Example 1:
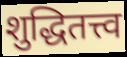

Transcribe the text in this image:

शुद्धितत्त्व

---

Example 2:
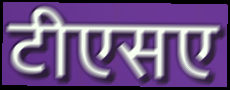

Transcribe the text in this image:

टीएसए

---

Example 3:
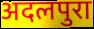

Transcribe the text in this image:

अदलपुरा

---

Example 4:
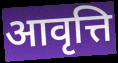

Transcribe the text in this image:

आवृत्ति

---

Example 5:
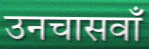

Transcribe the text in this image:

उनचासवाँ